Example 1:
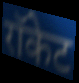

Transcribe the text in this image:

रॉकेट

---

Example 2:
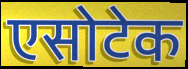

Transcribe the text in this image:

एसोटेक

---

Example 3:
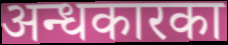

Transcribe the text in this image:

अन्धकारका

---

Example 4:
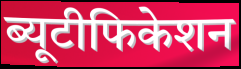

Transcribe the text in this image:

ब्यूटीफिकेशन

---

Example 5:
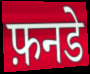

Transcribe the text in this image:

फ़नडे